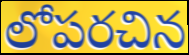
లోపరచిన